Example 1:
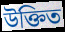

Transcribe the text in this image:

উক্তিত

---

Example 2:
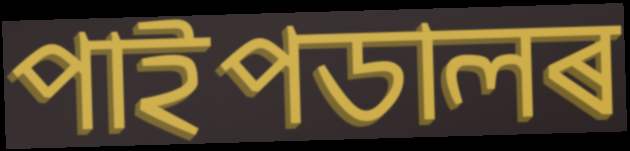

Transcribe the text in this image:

পাইপডালৰ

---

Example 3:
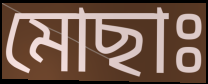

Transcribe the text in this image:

মোছাঃ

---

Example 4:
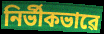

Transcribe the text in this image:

নিৰ্ভীকভাৱে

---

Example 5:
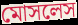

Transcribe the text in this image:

মোসলেস